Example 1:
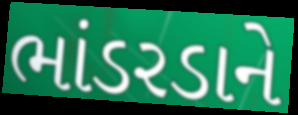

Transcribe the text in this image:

ભાંડરડાને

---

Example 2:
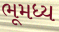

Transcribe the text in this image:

ભૂમધ્ય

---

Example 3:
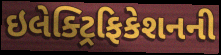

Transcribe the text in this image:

ઇલેક્ટ્રિફિકેશનની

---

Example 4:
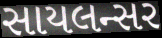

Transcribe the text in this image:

સાયલન્સર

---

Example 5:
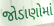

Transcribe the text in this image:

જોડાણોમાં